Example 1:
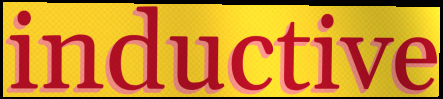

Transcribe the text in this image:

inductive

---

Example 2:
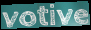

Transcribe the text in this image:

votive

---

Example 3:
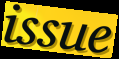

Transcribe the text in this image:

issue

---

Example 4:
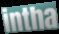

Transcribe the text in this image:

intha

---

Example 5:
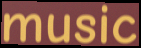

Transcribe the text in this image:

music